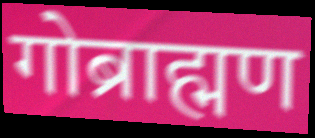
गोब्राह्मण